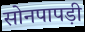
सोनपापड़ी